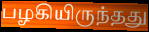
பழகியிருந்தது